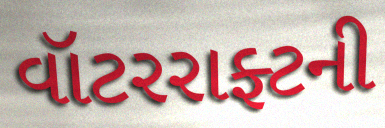
વૉટરરાફ્ટની